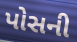
પોસની